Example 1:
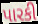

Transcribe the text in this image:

પારકી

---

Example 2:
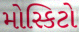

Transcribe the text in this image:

મોસ્કિટો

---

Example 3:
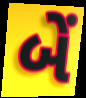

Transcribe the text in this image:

બેં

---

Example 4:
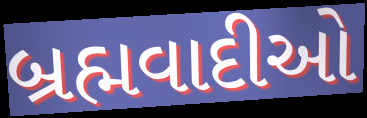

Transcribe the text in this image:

બ્રહ્મવાદીઓ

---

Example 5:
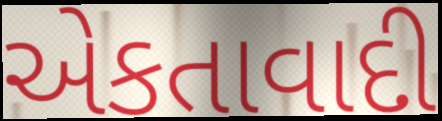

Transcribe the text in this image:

એકતાવાદી